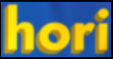
hori